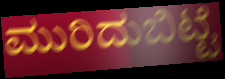
ಮುರಿದುಬಿಟ್ಟೆ